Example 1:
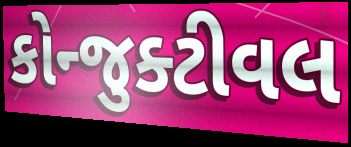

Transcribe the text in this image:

કોન્જુક્ટીવલ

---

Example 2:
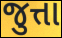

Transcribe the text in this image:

જુત્તા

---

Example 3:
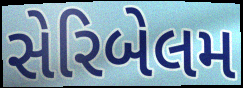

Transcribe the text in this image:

સેરિબેલમ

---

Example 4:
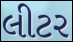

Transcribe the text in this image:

લીટર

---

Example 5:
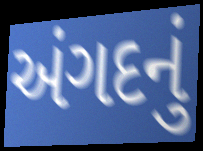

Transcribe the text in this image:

અંગદનું